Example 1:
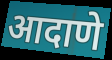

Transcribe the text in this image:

आदाणे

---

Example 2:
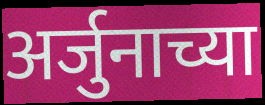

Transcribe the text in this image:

अर्जुनाच्या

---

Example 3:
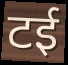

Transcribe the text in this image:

टई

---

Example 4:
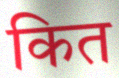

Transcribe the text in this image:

कित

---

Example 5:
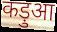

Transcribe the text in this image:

कड़ुआ